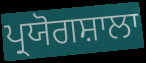
ਪ੍ਰਯੋਗਸ਼ਾਲਾ